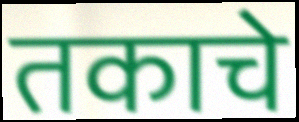
तकाचे